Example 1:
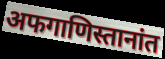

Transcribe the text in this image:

अफगाणिस्तानांत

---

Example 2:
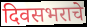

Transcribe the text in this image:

दिवसभराचे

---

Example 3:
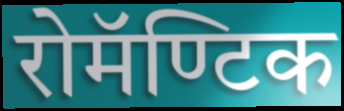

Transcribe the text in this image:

रोमॅण्टिक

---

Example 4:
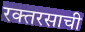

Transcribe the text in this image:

रक्तरसाची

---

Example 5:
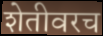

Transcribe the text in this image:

शेतीवरच